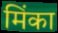
मिंका